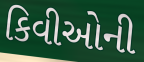
કિવીઓની